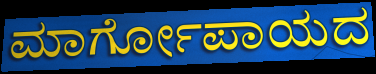
ಮಾರ್ಗೋಪಾಯದ